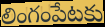
లింగంపేటకు